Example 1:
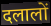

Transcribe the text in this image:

दलालों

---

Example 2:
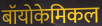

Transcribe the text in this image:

बॉयोकेमिकल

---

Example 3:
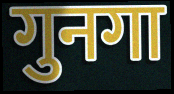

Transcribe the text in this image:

गुनगा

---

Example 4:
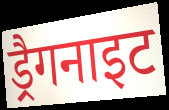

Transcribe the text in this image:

ड्रैगनाइट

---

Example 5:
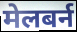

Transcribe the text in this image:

मेलबर्न